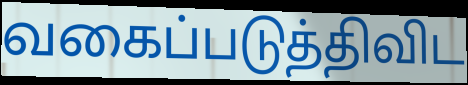
வகைப்படுத்திவிட